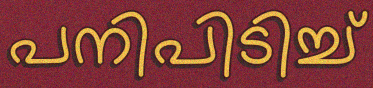
പനിപിടിച്ച്